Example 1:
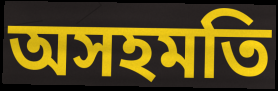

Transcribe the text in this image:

অসহমতি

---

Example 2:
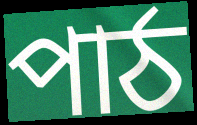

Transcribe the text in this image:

পাঠ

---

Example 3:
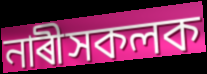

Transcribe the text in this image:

নাৰীসকলক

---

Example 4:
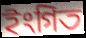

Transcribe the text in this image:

ইংগিত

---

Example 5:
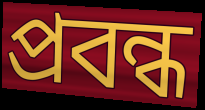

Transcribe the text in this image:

প্ৰবন্ধ